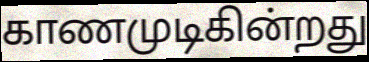
காணமுடிகின்றது